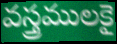
వస్త్రములకై